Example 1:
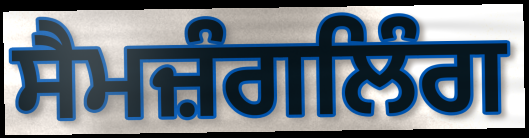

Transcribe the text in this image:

ਸੈਮਜ਼ੰਗਲਿੰਗ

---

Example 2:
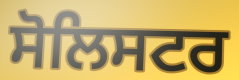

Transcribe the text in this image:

ਸੋਲਿਸਟਰ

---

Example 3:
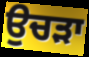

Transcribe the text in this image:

ਉਚੜਾ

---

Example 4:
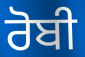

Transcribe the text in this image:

ਰੋਬੀ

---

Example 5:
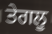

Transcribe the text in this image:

ਤੇਗਲੂ